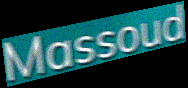
Massoud